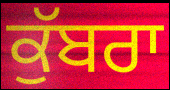
ਕੁੱਬਰਾ